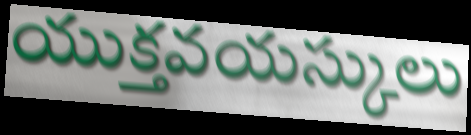
యుక్తవయస్కులు